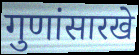
गुणांसारखे